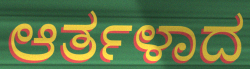
ಆರ್ತಳಾದ